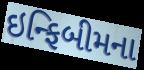
ઇન્ફિબીમના